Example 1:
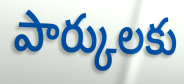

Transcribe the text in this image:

పార్కులకు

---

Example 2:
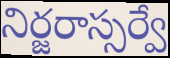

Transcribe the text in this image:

నిర్జరాస్సర్వే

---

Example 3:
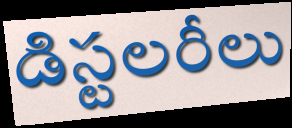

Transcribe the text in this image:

డిస్టలరీలు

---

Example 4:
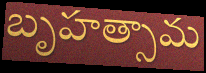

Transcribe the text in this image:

బృహత్సామ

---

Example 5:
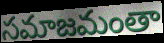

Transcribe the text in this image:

సమాజమంతా